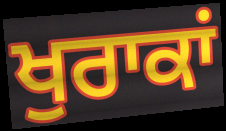
ਖੁਰਾਕਾਂ